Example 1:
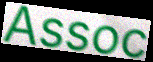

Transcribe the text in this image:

Assoc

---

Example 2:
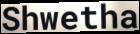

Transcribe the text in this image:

Shwetha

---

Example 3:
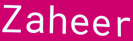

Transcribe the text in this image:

Zaheer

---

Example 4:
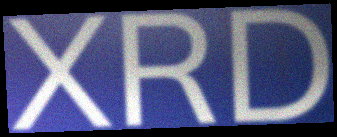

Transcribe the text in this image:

XRD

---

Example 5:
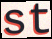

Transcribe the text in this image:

st